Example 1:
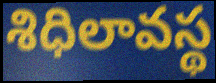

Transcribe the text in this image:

శిధిలావస్థ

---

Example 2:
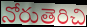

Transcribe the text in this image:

నోరుతెరిచి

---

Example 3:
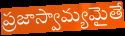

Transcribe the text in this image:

ప్రజాస్వామ్యమైతే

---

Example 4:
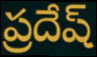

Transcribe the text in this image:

ప్రదేష్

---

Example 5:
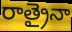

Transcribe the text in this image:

రాత్రైనా